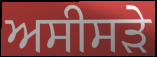
ਅਸੀਸੜੇ